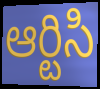
ఆర్టిసి